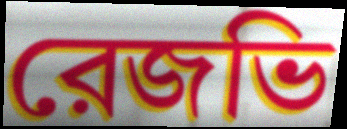
রেজভি